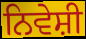
ਨਿਵੇਸ਼ੀ